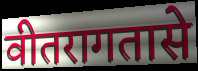
वीतरागतासे